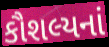
કૌશલ્યનાં